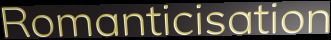
Romanticisation